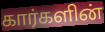
கார்களின்